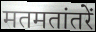
मतमतांतरें